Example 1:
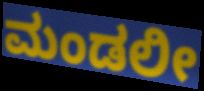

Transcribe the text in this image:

ಮಂಡಲೀ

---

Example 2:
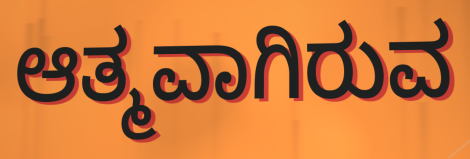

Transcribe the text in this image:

ಆತ್ಮವಾಗಿರುವ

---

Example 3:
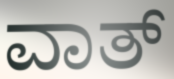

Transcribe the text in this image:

ವಾತ್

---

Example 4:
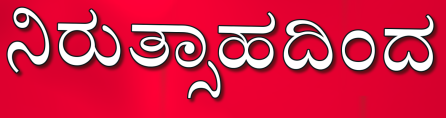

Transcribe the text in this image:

ನಿರುತ್ಸಾಹದಿಂದ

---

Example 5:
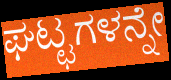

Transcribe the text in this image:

ಘಟ್ಟಗಳನ್ನೇ